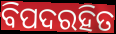
ବିପଦରହିତ